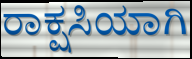
ರಾಕ್ಷಸಿಯಾಗಿ